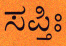
ಸಪ್ತಿಃ